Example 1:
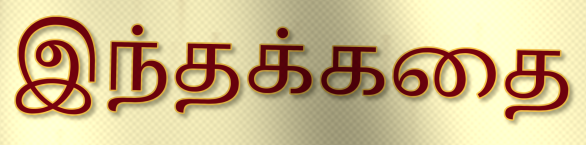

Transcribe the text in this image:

இந்தக்கதை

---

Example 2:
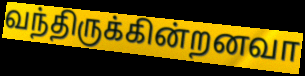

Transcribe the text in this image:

வந்திருக்கின்றனவா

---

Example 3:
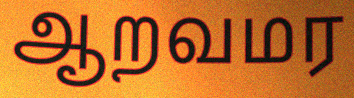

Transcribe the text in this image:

ஆறவமர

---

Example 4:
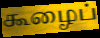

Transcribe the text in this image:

கூழைப்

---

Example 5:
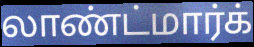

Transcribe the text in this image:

லாண்ட்மார்க்